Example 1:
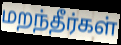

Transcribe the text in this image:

மறந்தீர்கள்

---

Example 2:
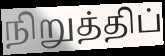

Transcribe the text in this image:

நிறுத்திப்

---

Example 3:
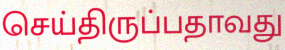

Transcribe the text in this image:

செய்திருப்பதாவது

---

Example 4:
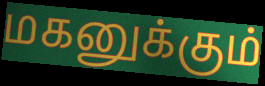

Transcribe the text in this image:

மகனுக்கும்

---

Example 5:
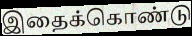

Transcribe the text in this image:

இதைக்கொண்டு